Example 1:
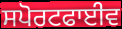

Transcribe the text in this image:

ਸਪੋਰਟਫਾਈਵ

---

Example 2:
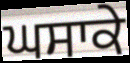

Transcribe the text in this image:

ਘਸਾਕੇ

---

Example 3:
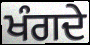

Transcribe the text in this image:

ਖੰਗਦੇ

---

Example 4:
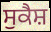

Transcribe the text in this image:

ਸੁਕੈਸ਼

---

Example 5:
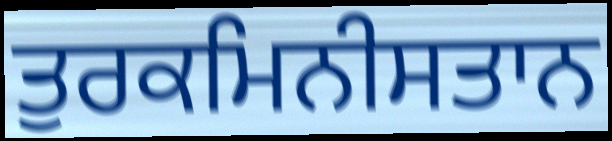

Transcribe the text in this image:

ਤੁਰਕਮਿਨੀਸਤਾਨ